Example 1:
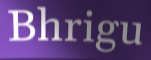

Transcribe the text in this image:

Bhrigu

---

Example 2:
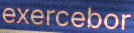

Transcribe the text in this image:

exercebor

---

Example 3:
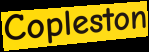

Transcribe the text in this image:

Copleston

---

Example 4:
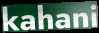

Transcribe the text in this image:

kahani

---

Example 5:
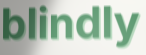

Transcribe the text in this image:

blindly